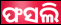
ଫସଲି